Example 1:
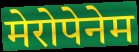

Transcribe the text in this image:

मेरोपेनेम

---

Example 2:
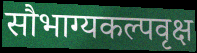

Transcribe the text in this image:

सौभाग्यकल्पवृक्ष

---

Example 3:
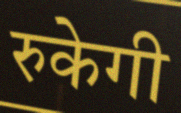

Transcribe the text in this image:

रुकेगी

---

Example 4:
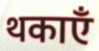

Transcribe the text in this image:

थकाएँ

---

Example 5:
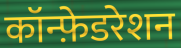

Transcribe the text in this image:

कॉन्फ़ेडरेशन